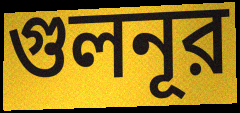
গুলনূর